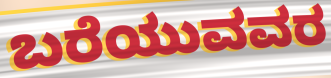
ಬರೆಯುವವರ